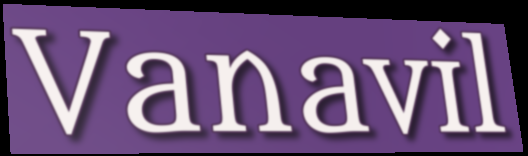
Vanavil